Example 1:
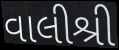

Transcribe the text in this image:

વાલીશ્રી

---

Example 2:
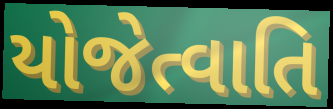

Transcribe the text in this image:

યોજેત્વાતિ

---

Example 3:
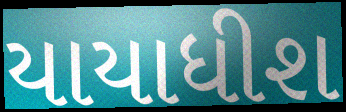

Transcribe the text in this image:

યાયાધીશ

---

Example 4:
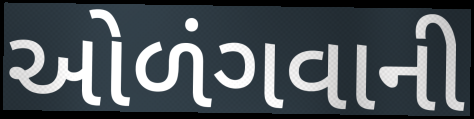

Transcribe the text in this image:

ઓળંગવાની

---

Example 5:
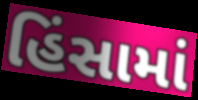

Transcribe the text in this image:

હિંસામાં